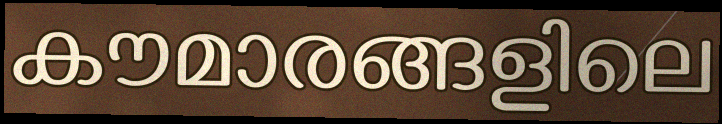
കൗമാരങ്ങളിലെ